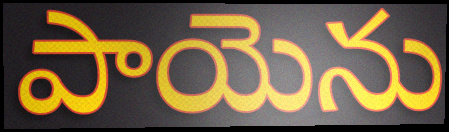
పాయెను